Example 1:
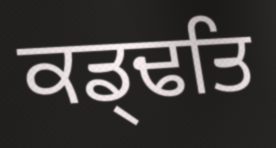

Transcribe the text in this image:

ਕਡ੍ਢਤਿ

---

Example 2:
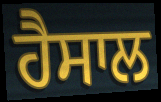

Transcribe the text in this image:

ਹੈਸਾਲ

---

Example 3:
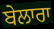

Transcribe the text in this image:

ਬੇਲਾਰਾ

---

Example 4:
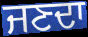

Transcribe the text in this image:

ਜਣਦਾ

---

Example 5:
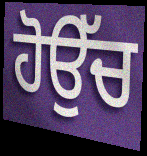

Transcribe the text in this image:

ਹੋਉੱਚ